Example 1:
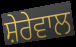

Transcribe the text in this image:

ਸ਼ੇਰੇਵਾਲ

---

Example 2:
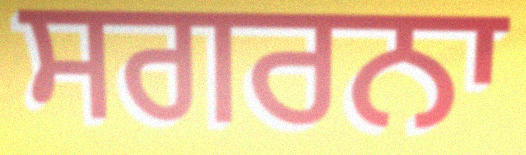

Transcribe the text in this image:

ਸਗਰਨਾ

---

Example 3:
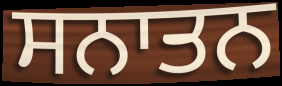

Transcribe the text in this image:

ਸਨਾਤਨ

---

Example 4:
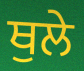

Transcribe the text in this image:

ਥੁਲੇ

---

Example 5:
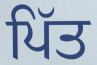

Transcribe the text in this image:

ਪਿੱਤ